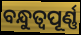
ବନ୍ଧୁତ୍ଵପୂର୍ଣ୍ଣ